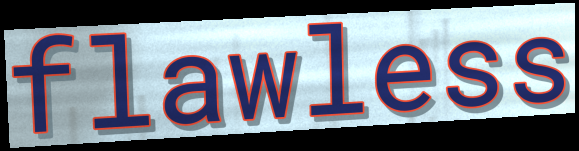
flawless